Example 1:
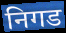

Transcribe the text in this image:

निगड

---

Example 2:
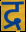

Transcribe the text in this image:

द्र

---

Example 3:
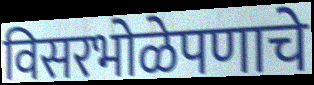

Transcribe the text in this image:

विसरभोळेपणाचे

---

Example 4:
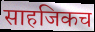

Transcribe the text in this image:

साहजिकच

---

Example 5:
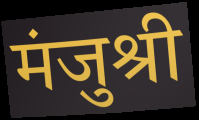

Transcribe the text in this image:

मंजुश्री